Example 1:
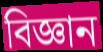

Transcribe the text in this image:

বিজ্ঞান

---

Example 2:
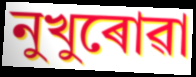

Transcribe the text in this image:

নুখুৰোৱা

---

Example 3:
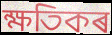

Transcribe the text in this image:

ক্ষতিকৰ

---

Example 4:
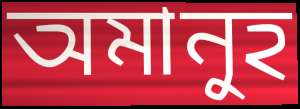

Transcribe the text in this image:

অমানুহ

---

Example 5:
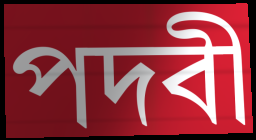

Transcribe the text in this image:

পদবী